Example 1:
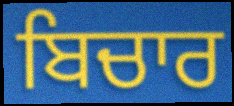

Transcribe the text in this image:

ਬਿਚਾਰ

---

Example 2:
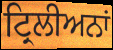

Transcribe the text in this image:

ਟ੍ਰਿਲੀਅਨਾਂ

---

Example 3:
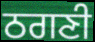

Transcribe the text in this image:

ਠਗਣੀ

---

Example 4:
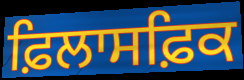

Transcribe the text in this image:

ਫ਼ਿਲਾਸਫ਼ਿਕ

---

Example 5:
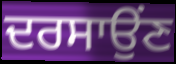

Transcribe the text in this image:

ਦਰਸਾਉਂਣ